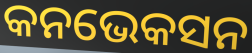
କନଭେକସନ